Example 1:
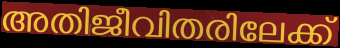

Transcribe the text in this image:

അതിജീവിതരിലേക്ക്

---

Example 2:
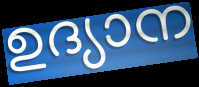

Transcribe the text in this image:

ഉദ്യാന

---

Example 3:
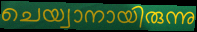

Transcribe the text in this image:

ചെയ്വാനായിരുന്നു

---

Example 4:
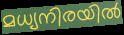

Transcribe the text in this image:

മധ്യനിരയിൽ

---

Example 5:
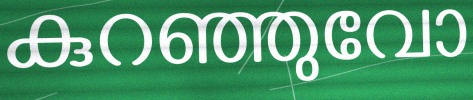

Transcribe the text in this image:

കുറഞ്ഞുവോ